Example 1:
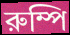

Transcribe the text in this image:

রুম্পি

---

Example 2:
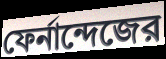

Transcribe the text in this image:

ফের্নান্দেজের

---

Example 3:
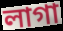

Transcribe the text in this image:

লাগা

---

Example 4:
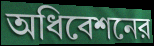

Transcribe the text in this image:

অধিবেশনের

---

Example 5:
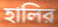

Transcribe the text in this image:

হালির